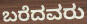
ಬರೆದವರು